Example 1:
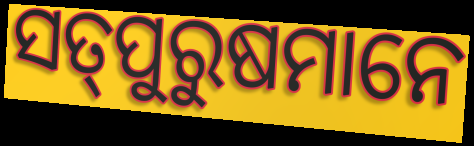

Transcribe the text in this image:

ସତ୍‌ପୁରୁଷମାନେ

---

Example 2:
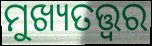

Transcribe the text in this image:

ମୁଖ୍ୟତତ୍ତ୍ୱର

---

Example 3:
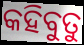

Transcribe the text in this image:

କହିବୁତୁ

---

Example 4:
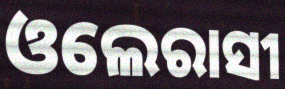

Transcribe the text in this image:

ଓଲେରାସୀ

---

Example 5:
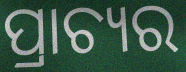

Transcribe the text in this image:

ପ୍ରାଚ୍ୟର